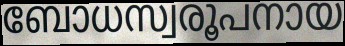
ബോധസ്വരൂപനായ